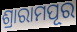
ଶ୍ରାରାମପୂର